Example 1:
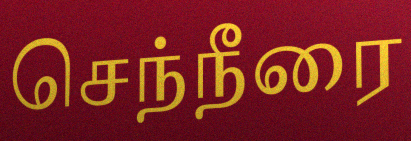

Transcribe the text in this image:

செந்நீரை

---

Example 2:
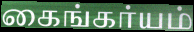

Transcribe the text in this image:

கைங்கர்யம்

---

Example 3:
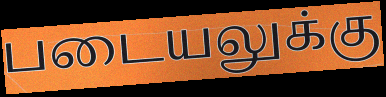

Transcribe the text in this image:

படையலுக்கு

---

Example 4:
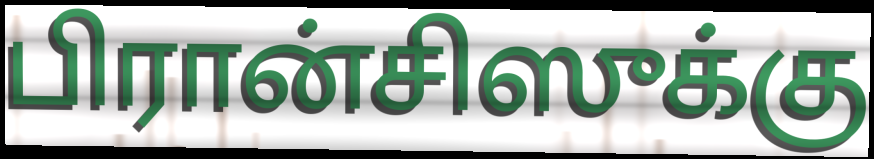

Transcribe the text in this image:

பிரான்சிஸுக்கு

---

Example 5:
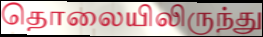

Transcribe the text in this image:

தொலையிலிருந்து